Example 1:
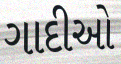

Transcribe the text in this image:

ગાદીઓ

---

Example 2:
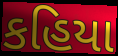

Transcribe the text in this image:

કહિયા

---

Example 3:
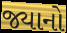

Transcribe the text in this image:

જ્યાનો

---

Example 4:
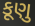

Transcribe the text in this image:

કૂણુ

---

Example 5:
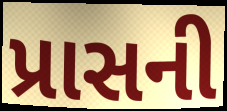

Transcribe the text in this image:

પ્રાસની